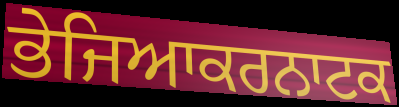
ਭੇਜਿਆਕਰਨਾਟਕ